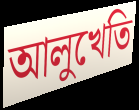
আলুখেতি